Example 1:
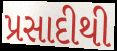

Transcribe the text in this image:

પ્રસાદીથી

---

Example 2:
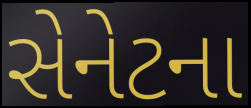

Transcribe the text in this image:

સેનેટના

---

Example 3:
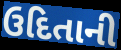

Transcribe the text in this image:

ઉદિતાની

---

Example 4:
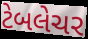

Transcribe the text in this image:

ટેબલેચર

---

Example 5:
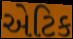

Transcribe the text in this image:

એટિક